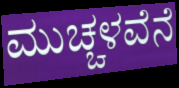
ಮುಚ್ಚಳವೆನೆ